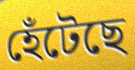
হেঁটেছে